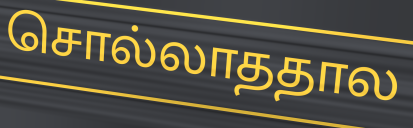
சொல்லாததால